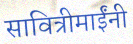
सावित्रीमाईंनी